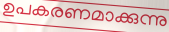
ഉപകരണമാക്കുന്നു